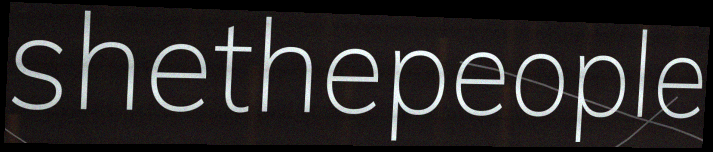
shethepeople